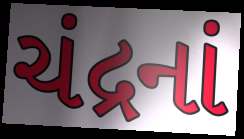
ચંદ્રનાં